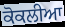
ਕੋਕਲੀਆ